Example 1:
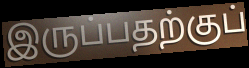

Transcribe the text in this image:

இருப்பதற்குப்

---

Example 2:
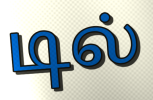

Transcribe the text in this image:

டில்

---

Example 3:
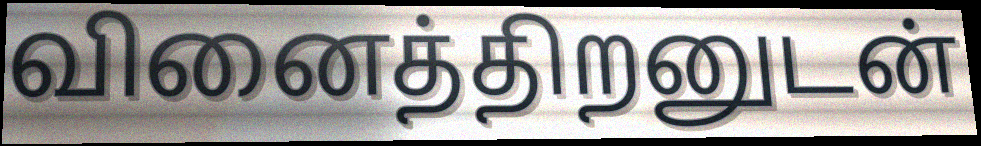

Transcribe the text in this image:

வினைத்திறனுடன்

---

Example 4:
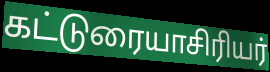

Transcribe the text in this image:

கட்டுரையாசிரியர்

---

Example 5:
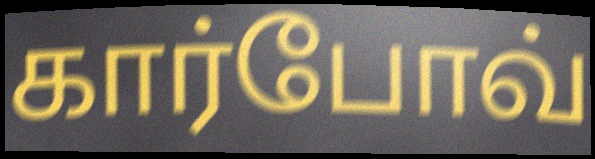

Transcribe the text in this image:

கார்போவ்